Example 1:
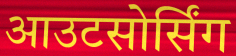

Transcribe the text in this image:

आउटसोर्सिंग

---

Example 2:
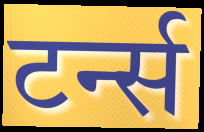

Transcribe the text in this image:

टर्न्स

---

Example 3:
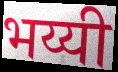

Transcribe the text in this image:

भय्यी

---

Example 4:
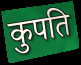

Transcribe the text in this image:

कुपति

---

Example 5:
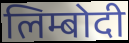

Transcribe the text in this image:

लिम्बोदी